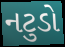
નટુડો